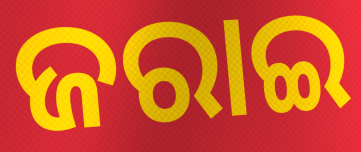
ଜରାଇ